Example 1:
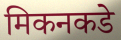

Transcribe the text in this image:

मिकनकडे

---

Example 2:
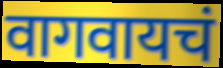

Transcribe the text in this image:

वागवायचं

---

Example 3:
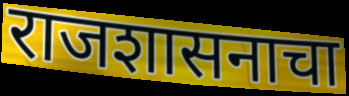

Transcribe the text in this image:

राजशासनाचा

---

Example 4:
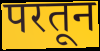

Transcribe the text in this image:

परतून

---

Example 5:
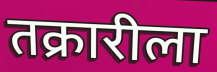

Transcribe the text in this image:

तक्रारीला